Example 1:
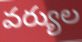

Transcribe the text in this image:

వర్యుల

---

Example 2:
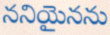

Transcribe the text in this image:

ననియైనను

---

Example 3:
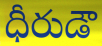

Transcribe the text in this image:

ధీరుడౌ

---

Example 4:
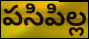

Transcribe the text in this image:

పసిపిల్ల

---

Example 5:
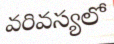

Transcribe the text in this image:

వరివస్యలో